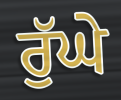
ਰੁੱਘੇ